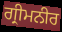
ਗ੍ਰੀਮਨੀਰ